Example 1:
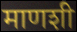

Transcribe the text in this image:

माणशी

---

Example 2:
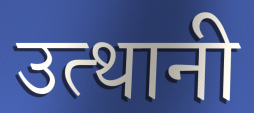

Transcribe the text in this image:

उत्थानी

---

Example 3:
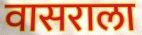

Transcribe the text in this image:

वासराला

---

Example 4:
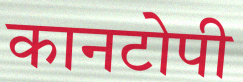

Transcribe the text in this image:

कानटोपी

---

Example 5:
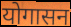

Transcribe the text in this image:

योगासन